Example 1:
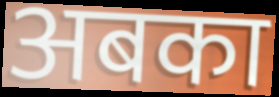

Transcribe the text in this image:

अबका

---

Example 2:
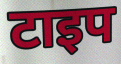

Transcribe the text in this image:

टाइप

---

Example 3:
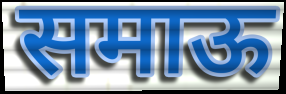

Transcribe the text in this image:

समाऊ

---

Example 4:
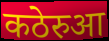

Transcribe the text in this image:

कठेरुआ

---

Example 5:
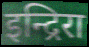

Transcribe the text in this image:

इन्द्रिरा